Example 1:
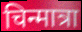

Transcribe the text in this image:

चिन्मात्रा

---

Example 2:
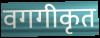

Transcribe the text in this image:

वगगीकृत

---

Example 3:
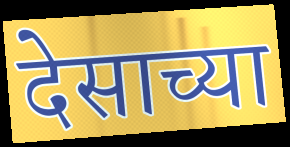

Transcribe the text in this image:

देसाच्या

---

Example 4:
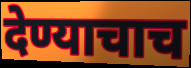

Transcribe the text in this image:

देण्याचाच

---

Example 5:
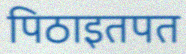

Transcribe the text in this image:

पिठाइतपत